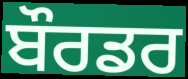
ਬੌਰਡਰ